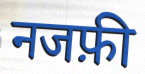
नजफ़ी